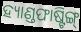
ହ୍ୟାଣ୍ଡଫାଷ୍ଟିଙ୍ଗ୍